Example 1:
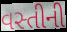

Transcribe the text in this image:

વસ્તીની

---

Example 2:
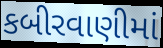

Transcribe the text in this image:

કબીરવાણીમાં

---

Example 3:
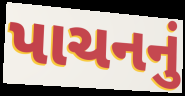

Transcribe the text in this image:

પાચનનું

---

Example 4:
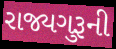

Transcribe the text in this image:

રાજ્યગુરૂની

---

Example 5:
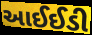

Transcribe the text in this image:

આઈઈડી